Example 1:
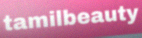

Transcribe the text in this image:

tamilbeauty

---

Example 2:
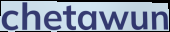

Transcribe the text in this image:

chetawun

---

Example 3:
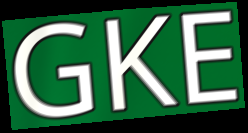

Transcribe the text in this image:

GKE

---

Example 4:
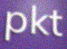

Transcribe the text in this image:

pkt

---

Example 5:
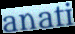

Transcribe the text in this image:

anati